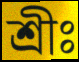
শ্রীঃ